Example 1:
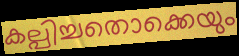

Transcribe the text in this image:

കല്പിച്ചതൊക്കെയും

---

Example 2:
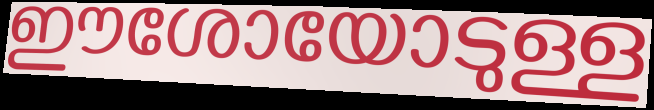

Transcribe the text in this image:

ഈശോയോടുള്ള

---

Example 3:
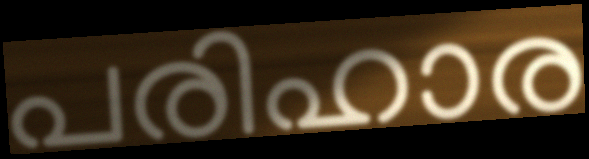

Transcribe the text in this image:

പരിഹാര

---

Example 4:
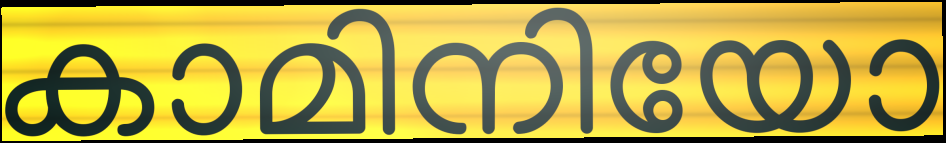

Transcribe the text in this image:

കാമിനിയോ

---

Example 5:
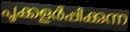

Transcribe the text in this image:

പൂക്കളർപ്പിക്കുന്ന